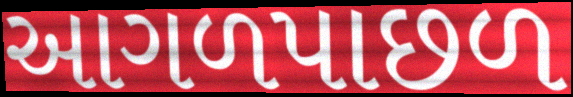
આગળપાછળ